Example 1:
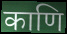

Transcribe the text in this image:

काणि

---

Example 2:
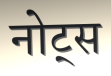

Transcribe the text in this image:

नोट्‌स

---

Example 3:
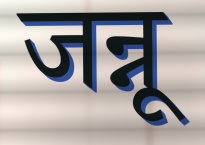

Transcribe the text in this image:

जन्नू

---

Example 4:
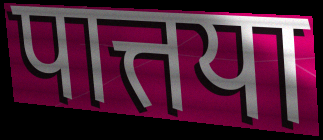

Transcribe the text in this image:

पात्तया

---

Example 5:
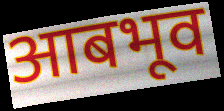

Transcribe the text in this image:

आबभूव